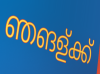
ഞങള്ക്ക്